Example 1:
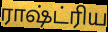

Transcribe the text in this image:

ராஷ்ட்ரிய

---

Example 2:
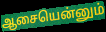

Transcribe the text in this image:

ஆசையென்னும்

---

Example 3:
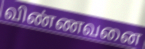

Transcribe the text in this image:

விண்ணவனை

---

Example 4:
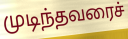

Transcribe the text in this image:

முடிந்தவரைச்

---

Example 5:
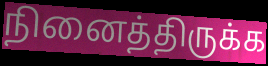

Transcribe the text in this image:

நினைத்திருக்க